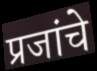
प्रजांचे